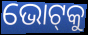
ଭୋଟ୍‍କୁ